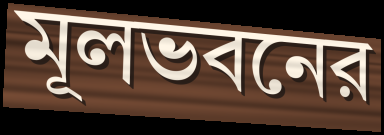
মূলভবনের